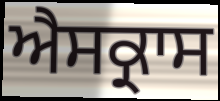
ਐਸਕ੍ਰਾਸ